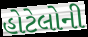
હોટેલોની